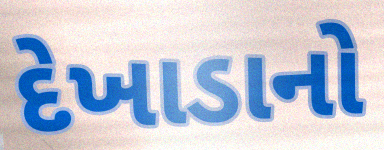
દેખાડાનો